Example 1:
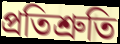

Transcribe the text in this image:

প্ৰতিশ্ৰুতি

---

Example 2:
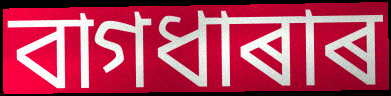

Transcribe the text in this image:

বাগধাৰাৰ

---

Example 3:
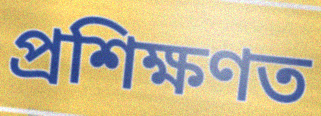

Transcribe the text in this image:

প্ৰশিক্ষণত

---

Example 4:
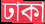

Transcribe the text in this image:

ঢাকা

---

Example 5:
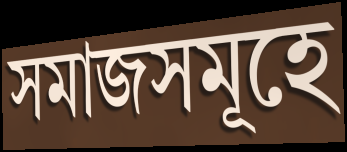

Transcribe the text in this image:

সমাজসমূহে